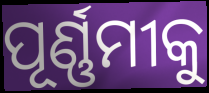
ପୂର୍ଣ୍ଣମୀକୁ